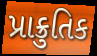
પ્રાક્રુતિક